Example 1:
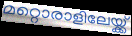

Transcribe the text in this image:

മറ്റൊരാളിലേയ്ക്ക്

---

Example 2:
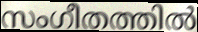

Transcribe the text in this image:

സംഗീതത്തിൽ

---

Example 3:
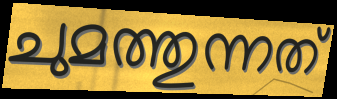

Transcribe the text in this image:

ചുമത്തുന്നത്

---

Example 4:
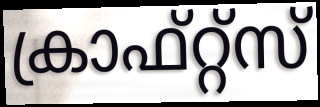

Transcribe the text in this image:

ക്രാഫ്റ്റ്സ്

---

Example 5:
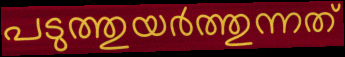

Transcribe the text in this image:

പടുത്തുയർത്തുന്നത്